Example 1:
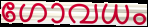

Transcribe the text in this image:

ഗോവധം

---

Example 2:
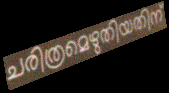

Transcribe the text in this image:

ചരിത്രമെഴുതിയതിന്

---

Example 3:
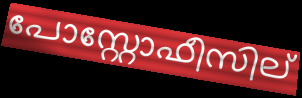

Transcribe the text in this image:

പോസ്റ്റോഫീസില്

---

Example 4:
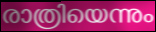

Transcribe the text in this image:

രാത്രിയെന്നും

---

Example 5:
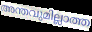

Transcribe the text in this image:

അന്തവുമില്ലാത്ത